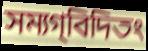
সম্যগ্‌বিদিতং